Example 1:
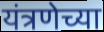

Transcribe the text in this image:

यंत्रणेच्या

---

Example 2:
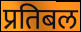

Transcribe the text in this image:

प्रतिबल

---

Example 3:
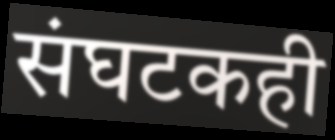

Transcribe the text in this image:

संघटकही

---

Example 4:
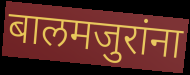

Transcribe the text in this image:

बालमजुरांना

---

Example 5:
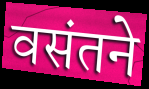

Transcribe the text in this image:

वसंतने